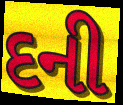
દની